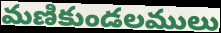
మణికుండలములు